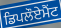
ਡਿਪਲੌਏਮੈਂਟ